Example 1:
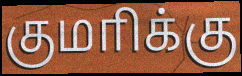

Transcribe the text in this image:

குமரிக்கு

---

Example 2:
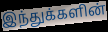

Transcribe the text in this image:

இந்துக்களின்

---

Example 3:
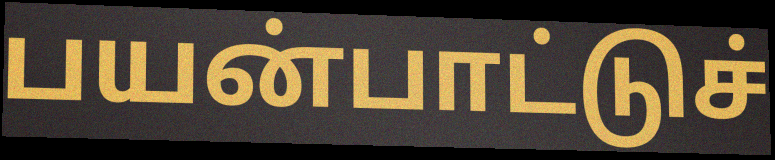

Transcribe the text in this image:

பயன்பாட்டுச்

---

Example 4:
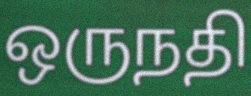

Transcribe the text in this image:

ஒருநதி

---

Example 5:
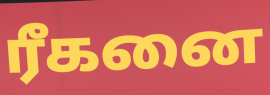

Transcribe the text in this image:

ரீகனை